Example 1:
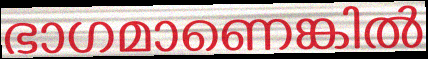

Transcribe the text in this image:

ഭാഗമാണെങ്കിൽ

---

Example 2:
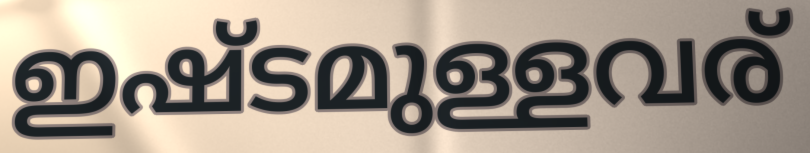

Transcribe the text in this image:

ഇഷ്ടമുള്ളവര്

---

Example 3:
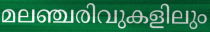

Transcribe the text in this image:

മലഞ്ചരിവുകളിലും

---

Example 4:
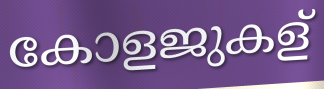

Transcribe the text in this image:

കോളജുകള്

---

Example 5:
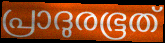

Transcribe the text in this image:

പ്രാദുരഭൂത്